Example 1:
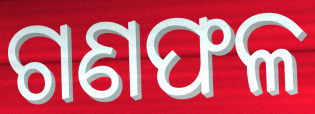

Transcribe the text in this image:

ଗଣଫଳ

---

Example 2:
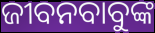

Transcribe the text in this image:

ଜୀବନବାବୁଙ୍କ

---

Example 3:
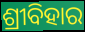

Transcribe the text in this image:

ଶ୍ରୀବିହାର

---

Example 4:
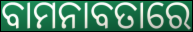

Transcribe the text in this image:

ବାମନାବତାରେ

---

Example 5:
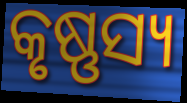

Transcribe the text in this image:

କୃଷ୍ଣସ୍ୟ